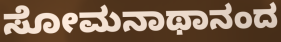
ಸೋಮನಾಥಾನಂದ